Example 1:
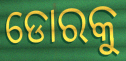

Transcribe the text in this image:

ଡୋରକୁ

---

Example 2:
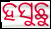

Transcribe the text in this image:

ହସୁଛୁ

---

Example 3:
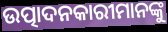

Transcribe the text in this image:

ଉତ୍ପାଦନକାରୀମାନଙ୍କୁ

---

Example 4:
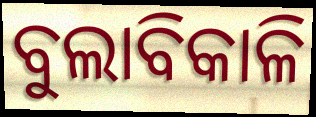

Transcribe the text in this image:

ବୁଲାବିକାଳି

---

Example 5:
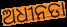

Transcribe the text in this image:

ଅଧୀନତା